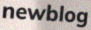
newblog